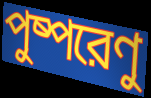
পুষ্পরেণু